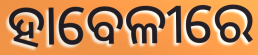
ହାବେଳୀରେ